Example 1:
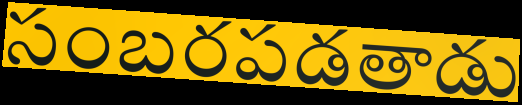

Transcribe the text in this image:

సంబరపడతాడు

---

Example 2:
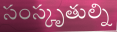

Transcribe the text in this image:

సంస్కృతుల్ని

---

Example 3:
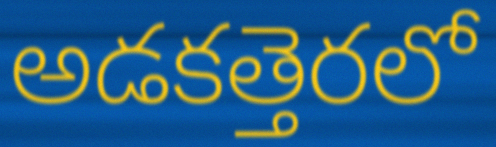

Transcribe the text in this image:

అడకత్తెరలో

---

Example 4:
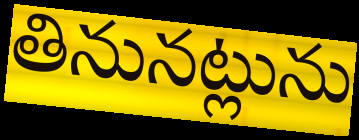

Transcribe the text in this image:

తినునట్లును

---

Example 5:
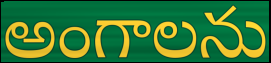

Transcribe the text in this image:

అంగాలను